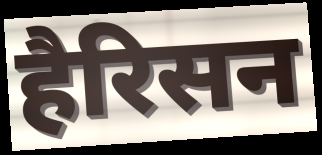
हैरिसन